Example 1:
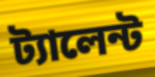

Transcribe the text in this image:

ট্যালেন্ট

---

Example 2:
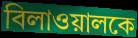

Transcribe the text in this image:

বিলাওয়ালকে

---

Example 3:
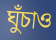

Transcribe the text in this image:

ঘুঁচাও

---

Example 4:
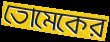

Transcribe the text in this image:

তোমেকের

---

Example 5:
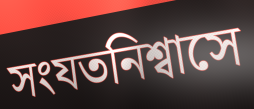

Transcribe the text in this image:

সংযতনিশ্বাসে